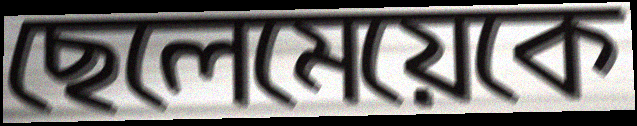
ছেলেমেয়েকে